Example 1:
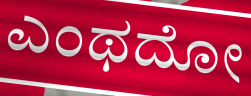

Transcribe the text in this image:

ಎಂಥದೋ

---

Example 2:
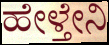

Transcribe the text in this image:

ಹೇಳ್ತೇನಿ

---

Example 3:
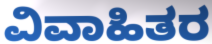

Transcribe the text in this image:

ವಿವಾಹಿತರ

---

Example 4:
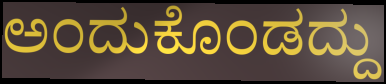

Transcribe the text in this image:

ಅಂದುಕೊಂಡದ್ದು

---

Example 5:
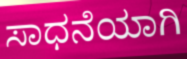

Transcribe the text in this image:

ಸಾಧನೆಯಾಗಿ